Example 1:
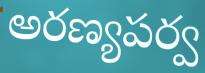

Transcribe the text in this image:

అరణ్యపర్వ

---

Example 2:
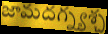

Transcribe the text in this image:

జామదగ్న్యశ్చ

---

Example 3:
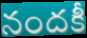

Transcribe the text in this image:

నందకీ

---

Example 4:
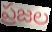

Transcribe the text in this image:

ప్రజల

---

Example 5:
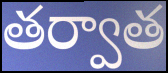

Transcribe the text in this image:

తర్వాత